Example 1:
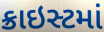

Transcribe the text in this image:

ક્રાઇસ્ટમાં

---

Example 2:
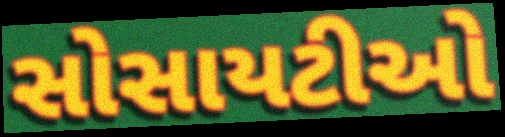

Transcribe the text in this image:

સોસાયટીઓ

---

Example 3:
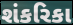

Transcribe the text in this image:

શંકરિકા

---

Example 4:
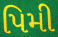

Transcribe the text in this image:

પિમી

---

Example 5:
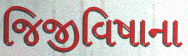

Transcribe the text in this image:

જિજીવિષાના